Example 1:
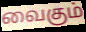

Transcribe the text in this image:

வைகும்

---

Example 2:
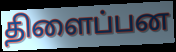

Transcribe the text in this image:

திளைப்பன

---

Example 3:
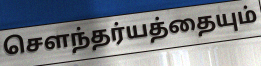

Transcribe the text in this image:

சௌந்தர்யத்தையும்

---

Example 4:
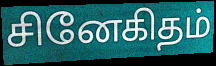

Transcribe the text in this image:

சினேகிதம்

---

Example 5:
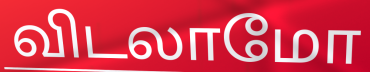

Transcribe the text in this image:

விடலாமோ